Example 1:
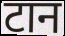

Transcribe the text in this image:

टान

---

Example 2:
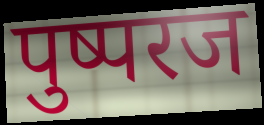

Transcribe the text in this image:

पुष्परज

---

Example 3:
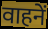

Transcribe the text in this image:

वाहनें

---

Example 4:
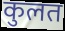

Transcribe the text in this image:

कुलत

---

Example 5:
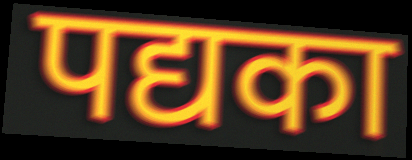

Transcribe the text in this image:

पद्यका